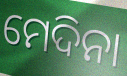
ମେଦିନା